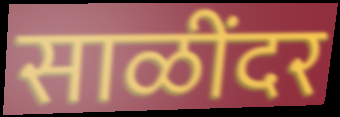
साळींदर